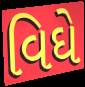
વિઘે